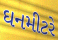
ઘનમીટરે